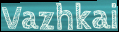
Vazhkai